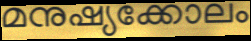
മനുഷ്യക്കോലം